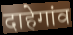
दाहेगांव